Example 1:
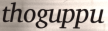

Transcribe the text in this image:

thoguppu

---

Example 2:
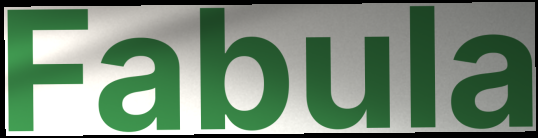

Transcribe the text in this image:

Fabula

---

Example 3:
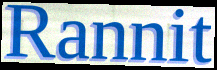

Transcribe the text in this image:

Rannit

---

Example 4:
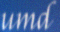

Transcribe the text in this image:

umd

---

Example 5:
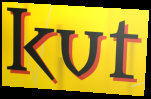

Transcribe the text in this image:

kut